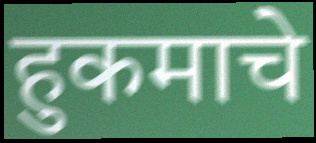
हुकमाचे